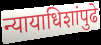
न्यायाधिशांपुढे